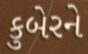
કુબેરને